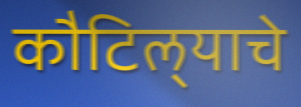
कौटिल्याचे